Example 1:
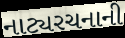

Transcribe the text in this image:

નાટ્યરચનાની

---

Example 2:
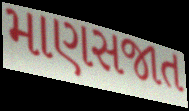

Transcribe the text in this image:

માણસજાત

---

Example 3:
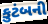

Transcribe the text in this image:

કુટંબની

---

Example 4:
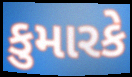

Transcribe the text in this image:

કુમારકે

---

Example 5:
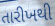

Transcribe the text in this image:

તારીખથી